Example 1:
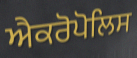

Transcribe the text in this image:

ਐਕਰੋਪੋਲਿਸ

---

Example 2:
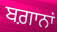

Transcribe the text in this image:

ਬਗ਼ਾਨਾਂ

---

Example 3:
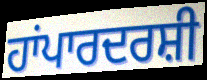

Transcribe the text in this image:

ਹਾਂਪਾਰਦਰਸ਼ੀ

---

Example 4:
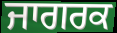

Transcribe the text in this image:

ਜਾਗਰਕ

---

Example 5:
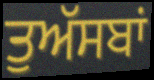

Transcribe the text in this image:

ਤੁਅੱਸਬਾਂ